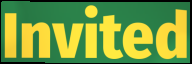
Invited